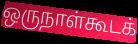
ஒருநாள்கூடக்